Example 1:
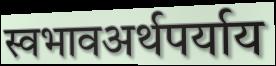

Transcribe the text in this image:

स्वभावअर्थपर्याय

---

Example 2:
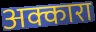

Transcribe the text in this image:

अक्कारा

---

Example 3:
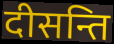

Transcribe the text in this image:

दीसन्ति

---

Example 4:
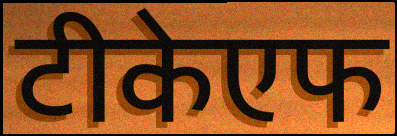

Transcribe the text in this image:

टीकेएफ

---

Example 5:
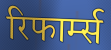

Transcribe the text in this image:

रिफार्म्स